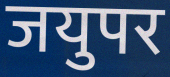
जयुपर